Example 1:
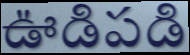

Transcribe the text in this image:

ఊడిపడి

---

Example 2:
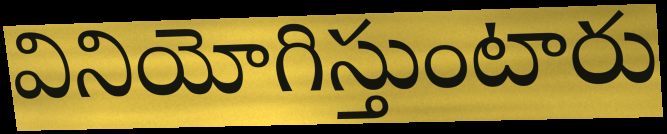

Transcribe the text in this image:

వినియోగిస్తుంటారు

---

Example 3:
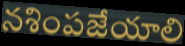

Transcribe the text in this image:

నశింపజేయాలి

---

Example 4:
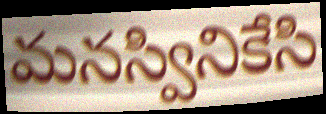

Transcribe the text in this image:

మనస్వినికేసి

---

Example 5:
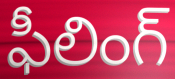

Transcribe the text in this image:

ఫీలింగ్